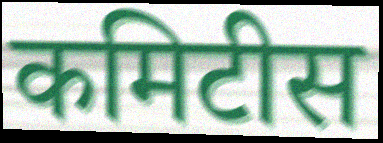
कमिटीस